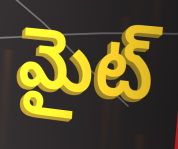
మైట్